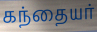
கந்தையர்